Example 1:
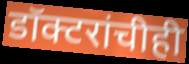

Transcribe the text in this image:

डॉक्टरांचीही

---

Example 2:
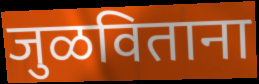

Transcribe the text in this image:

जुळविताना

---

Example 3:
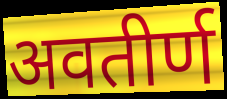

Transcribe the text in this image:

अवतीर्ण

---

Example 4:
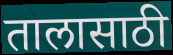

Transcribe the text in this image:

तालासाठी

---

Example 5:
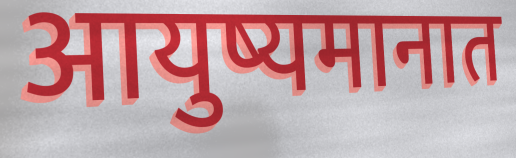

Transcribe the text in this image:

आयुष्यमानात